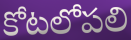
కోటలోపలి